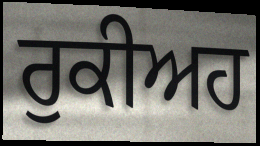
ਰੁਕੀਅਹ